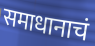
समाधानाचं